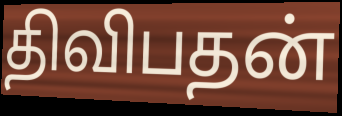
திவிபதன்